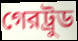
গেরট্রুড